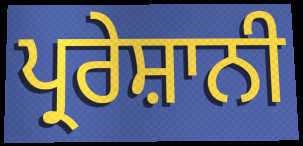
ਪ੍ਰਰੇਸ਼ਾਨੀ